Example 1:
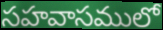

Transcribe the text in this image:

సహవాసములో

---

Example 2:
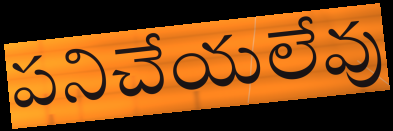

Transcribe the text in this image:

పనిచేయలేవు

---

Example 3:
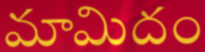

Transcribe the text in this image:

మామిదం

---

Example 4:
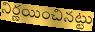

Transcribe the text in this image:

నిర్ణయించినట్టు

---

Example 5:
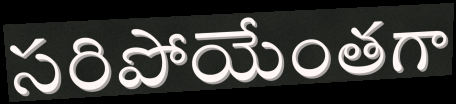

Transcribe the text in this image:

సరిపోయేంతగా